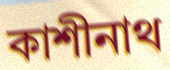
কাশীনাথ